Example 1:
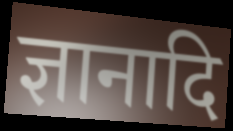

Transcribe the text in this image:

ज्ञानादि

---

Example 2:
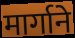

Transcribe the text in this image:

मार्गाने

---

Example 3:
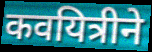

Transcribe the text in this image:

कवयित्रीने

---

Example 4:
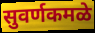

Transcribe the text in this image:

सुवर्णकमळे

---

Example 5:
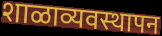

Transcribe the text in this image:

शाळाव्यवस्थापन